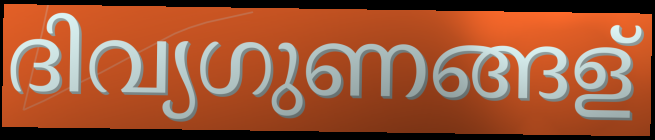
ദിവ്യഗുണങ്ങള്